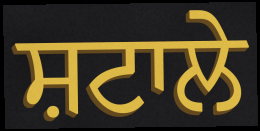
ਸ਼ਟਾਲੇ